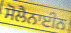
ਸੋਲੈਨਾਈਨ